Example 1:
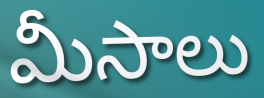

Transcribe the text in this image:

మీసాలు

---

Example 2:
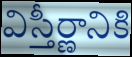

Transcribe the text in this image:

విస్తీర్ణానికి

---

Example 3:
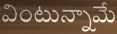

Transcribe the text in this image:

వింటున్నామే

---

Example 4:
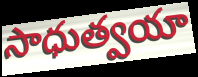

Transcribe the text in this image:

సాధుత్వయా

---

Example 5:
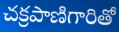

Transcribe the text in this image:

చక్రపాణిగారితో